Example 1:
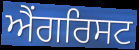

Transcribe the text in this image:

ਐਂਗਰਿਸਟ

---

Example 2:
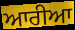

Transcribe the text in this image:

ਆਰੀਆ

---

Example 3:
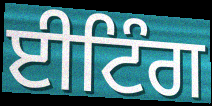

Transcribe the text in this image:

ਈਟਿੰਗ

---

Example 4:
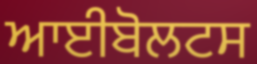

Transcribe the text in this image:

ਆਈਬੋਲਟਸ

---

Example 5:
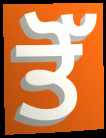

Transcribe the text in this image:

ਤੋੱ